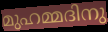
മുഹമ്മദിനു